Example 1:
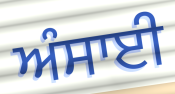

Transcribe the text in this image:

ਅੰਸਾਈ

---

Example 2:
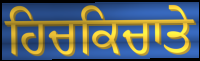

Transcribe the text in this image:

ਹਿਚਕਿਚਾਤੇ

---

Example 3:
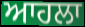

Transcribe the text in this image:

ਆਹਲਾ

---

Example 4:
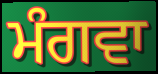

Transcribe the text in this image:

ਮੰਗਵਾ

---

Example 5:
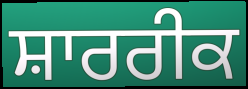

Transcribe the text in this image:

ਸ਼ਾਰਰੀਕ